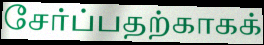
சேர்ப்பதற்காகக்